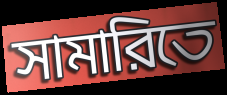
সামারিতে